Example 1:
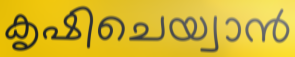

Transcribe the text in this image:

കൃഷിചെയ്വാൻ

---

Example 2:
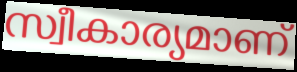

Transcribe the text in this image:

സ്വീകാര്യമാണ്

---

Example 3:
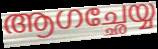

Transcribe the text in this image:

ആഗച്ഛേയ്യ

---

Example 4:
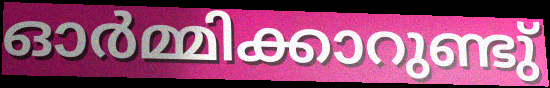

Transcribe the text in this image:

ഓർമ്മിക്കാറുണ്ടു്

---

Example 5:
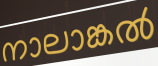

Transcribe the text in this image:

നാലാങ്കൽ